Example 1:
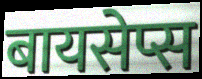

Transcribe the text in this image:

बायसेप्स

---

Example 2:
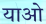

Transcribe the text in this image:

याओ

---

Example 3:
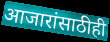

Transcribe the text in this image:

आजारांसाठीही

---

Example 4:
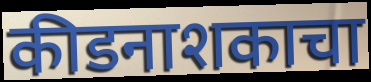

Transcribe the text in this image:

कीडनाशकाचा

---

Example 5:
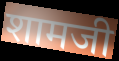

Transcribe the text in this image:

शामजी